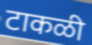
टाकळी